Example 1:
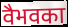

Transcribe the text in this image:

वैभवका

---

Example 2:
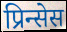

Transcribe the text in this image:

प्रिन्सेस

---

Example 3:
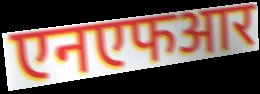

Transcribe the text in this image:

एनएफआर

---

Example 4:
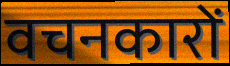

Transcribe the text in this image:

वचनकारों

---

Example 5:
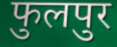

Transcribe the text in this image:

फुलपुर